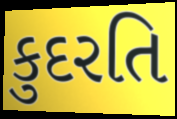
કુદરતિ